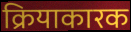
क्रियाकारक